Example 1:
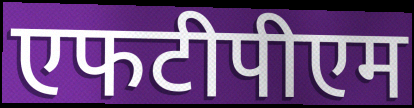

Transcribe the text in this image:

एफटीपीएम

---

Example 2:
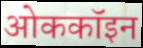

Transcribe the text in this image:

ओककॉइन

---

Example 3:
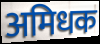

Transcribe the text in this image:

अमिधक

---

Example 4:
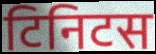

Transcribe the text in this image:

टिनिटस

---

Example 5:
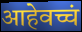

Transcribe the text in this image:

आहेवच्चं